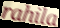
rahila